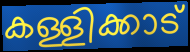
കള്ളിക്കാട്